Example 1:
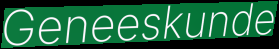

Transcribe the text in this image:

Geneeskunde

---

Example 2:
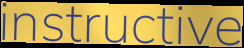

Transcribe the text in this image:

instructive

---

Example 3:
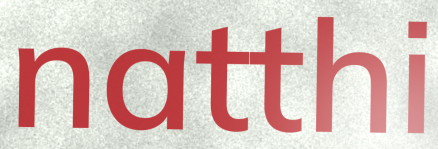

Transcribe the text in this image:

natthi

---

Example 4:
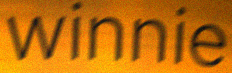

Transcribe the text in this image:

winnie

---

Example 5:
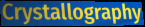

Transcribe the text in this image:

Crystallography